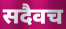
सदैवच